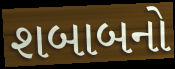
શબાબનો